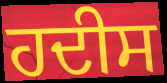
ਹਦੀਸ